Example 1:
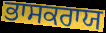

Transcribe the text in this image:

ਭਾਸਕਰਾਯ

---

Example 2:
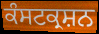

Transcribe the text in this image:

ਕੰਸਟਕ੍ਰਸ਼ਨ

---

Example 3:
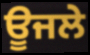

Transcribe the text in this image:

ਊਜਲੇ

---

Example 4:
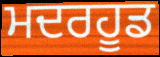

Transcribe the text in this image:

ਮਦਰਹੂਡ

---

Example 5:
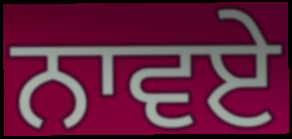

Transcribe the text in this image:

ਨਾਵਏ